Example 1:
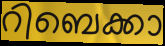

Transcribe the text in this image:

റിബെക്കാ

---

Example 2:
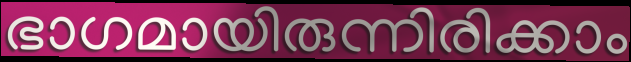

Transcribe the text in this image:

ഭാഗമായിരുന്നിരിക്കാം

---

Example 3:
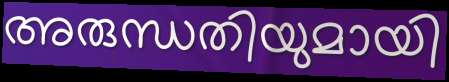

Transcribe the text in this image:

അരുന്ധതിയുമായി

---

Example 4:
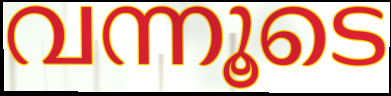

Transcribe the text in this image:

വന്നൂടെ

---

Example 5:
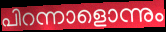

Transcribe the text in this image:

പിറന്നാളൊന്നും